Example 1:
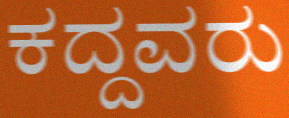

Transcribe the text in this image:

ಕದ್ದವರು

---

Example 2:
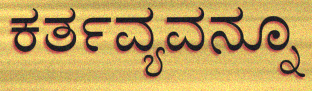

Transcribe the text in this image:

ಕರ್ತವ್ಯವನ್ನೂ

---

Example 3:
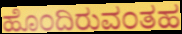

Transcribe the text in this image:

ಹೊಂದಿರುವಂತಹ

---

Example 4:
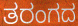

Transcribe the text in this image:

ತರಂಗದ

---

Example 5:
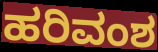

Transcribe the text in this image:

ಹರಿವಂಶ